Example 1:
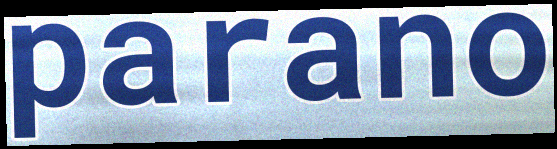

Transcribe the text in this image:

parano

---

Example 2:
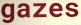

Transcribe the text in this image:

gazes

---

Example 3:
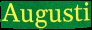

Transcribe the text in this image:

Augusti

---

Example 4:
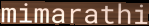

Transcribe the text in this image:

mimarathi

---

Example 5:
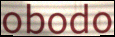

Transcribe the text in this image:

obodo